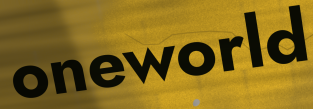
oneworld